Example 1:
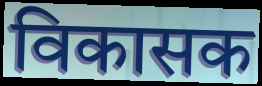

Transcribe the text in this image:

विकासक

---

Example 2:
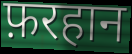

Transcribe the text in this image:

फ़रहान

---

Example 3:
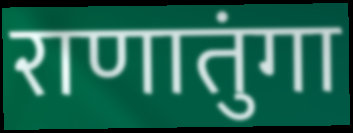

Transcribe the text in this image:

राणातुंगा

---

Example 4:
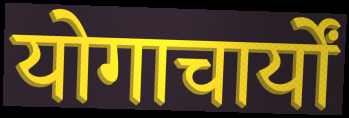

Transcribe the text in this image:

योगाचार्यों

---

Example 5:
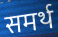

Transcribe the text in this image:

समर्थ